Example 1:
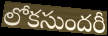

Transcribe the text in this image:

లోకసుందరీ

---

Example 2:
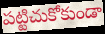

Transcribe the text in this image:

పట్టిచుకోకుండా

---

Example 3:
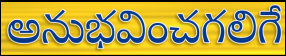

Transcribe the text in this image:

అనుభవించగలిగే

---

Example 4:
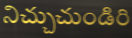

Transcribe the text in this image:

నిచ్చుచుండిరి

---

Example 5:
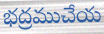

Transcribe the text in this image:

భద్రముచేయ